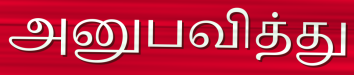
அனுபவித்து